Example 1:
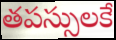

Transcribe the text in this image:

తపస్సులకే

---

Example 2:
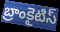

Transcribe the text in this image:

బ్రాంకైటిస్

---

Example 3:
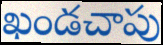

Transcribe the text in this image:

ఖండచాపు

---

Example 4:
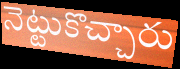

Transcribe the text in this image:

నెట్టుకొచ్చారు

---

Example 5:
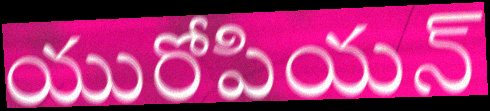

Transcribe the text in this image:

యురోపియన్